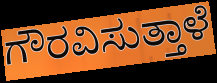
ಗೌರವಿಸುತ್ತಾಳೆ